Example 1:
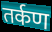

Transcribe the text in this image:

तर्कण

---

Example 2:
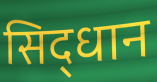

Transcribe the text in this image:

सिद्धान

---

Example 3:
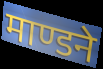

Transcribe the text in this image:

माण्डने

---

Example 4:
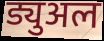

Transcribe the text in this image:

ड्युअल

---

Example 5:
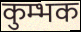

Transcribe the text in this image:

कुम्भक